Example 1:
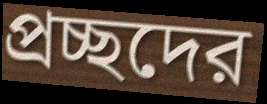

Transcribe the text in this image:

প্রচ্ছদের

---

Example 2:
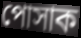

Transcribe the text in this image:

পোসাক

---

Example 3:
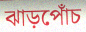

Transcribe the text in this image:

ঝাড়পোঁচ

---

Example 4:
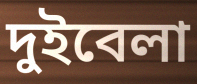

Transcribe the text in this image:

দুইবেলা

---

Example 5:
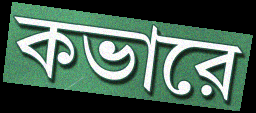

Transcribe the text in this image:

কভারে